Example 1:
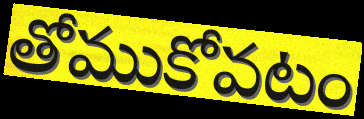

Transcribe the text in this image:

తోముకోవటం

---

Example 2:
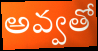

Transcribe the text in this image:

అవ్వతో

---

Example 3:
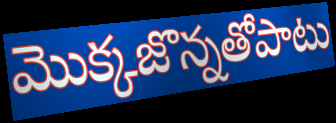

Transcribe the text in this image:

మొక్కజొన్నతోపాటు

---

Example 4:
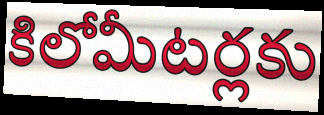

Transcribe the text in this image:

కిలోమీటర్లకు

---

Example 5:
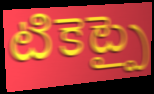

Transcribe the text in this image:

టికెట్పై